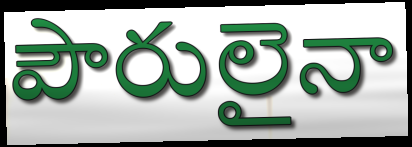
పౌరులైనా